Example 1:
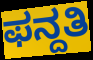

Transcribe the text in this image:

ಫನ್ದತಿ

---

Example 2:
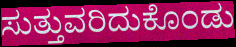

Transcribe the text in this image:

ಸುತ್ತುವರಿದುಕೊಂಡು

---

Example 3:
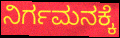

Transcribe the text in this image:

ನಿರ್ಗಮನಕ್ಕೆ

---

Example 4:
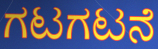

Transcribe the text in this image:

ಗಟಗಟನೆ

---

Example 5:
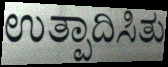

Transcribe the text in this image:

ಉತ್ಪಾದಿಸಿತು